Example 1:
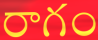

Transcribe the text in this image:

రాగం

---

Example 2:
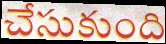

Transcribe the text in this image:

చేసుకుంది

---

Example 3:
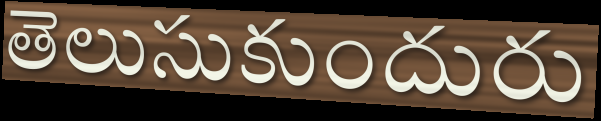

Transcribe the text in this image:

తెలుసుకుందురు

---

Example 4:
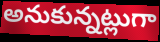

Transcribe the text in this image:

అనుకున్నట్లుగా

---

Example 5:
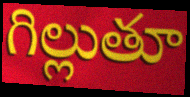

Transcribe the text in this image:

గిల్లుతూ